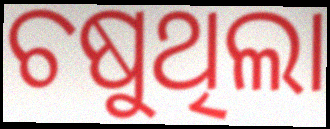
ଚଷୁଥିଲା